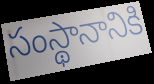
సంస్థానానికి